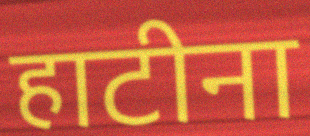
हाटीना